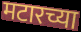
मटारच्या